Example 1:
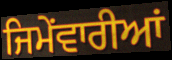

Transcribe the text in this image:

ਜਿਮੇਂਵਾਰੀਆਂ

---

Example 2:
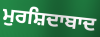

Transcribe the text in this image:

ਮੁਰਸ਼ਿਦਾਬਾਦ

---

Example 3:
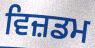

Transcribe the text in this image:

ਵਿਜ਼ਡਮ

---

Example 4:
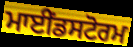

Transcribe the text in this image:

ਮਾਈਂਡਸਟੋਰਮ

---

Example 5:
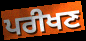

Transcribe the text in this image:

ਪਰੀਖਣ